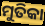
ମୁତିକା